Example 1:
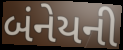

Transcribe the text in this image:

બંનેયની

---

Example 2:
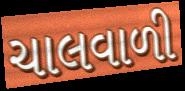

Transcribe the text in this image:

ચાલવાળી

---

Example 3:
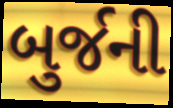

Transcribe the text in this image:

બુર્જની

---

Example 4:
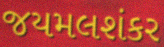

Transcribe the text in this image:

જયમલશંકર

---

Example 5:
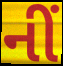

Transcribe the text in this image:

નીં